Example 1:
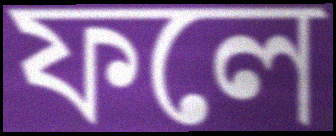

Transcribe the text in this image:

ফলে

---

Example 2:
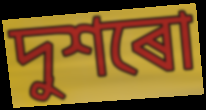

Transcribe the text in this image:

দুশৰো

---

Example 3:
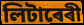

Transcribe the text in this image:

লিটাৰেৰী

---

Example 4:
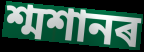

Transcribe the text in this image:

শ্মশানৰ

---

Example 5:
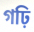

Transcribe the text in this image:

গঢ়ি